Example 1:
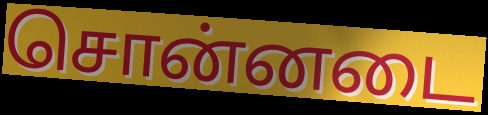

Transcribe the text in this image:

சொன்னடை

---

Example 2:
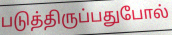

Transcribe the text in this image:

படுத்திருப்பதுபோல்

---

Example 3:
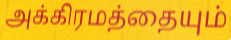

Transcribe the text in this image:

அக்கிரமத்தையும்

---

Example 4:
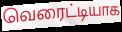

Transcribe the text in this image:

வெரைட்டியாக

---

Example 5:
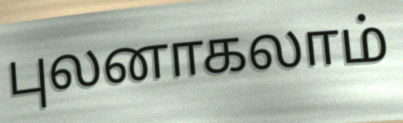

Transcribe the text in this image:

புலனாகலாம்